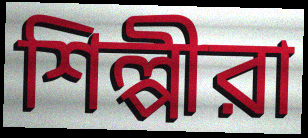
শিল্পীরা